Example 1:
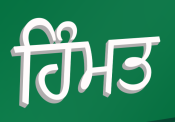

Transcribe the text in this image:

ਹਿੰਮਤ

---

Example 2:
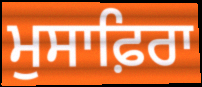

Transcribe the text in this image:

ਮੁਸਾਫ਼ਿਰਾ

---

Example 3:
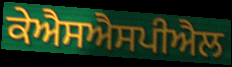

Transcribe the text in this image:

ਕੇਐਸਐਸਪੀਐਲ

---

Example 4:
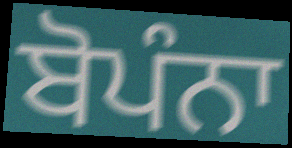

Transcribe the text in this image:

ਬੋਪੰਨਾ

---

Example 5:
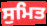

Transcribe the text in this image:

ਸੁਮਿਤ